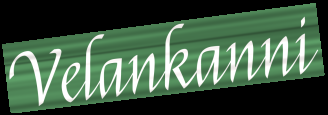
Velankanni